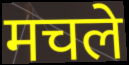
मचले